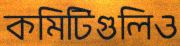
কমিটিগুলিও